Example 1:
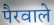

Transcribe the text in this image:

पैरवाले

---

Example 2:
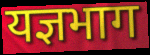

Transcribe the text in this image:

यज्ञभाग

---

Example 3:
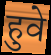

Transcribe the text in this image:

हुवे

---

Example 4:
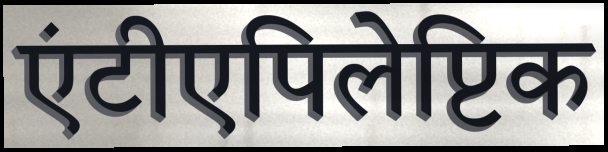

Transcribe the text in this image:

एंटीएपिलेप्टिक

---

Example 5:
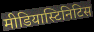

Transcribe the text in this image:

मीडियास्टिनिटिस